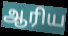
ஆரிய